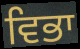
ਵਿਭਾ